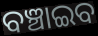
ବଞ୍ଚାଇବ